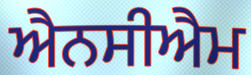
ਐਨਸੀਐਮ